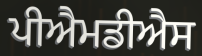
ਪੀਐਮਡੀਐਸ